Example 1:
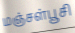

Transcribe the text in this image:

மஞ்சள்பூசி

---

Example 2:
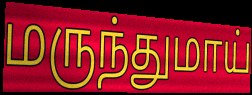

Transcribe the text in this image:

மருந்துமாய்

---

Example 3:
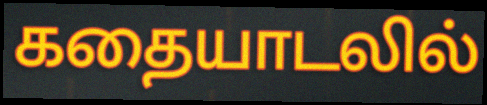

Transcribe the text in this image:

கதையாடலில்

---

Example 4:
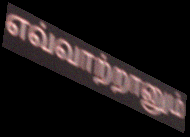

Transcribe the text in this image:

எவ்வாற்றானும்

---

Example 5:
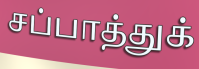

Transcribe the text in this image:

சப்பாத்துக்